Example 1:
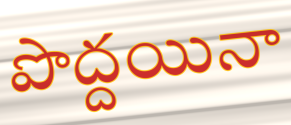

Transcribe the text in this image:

పొద్దయినా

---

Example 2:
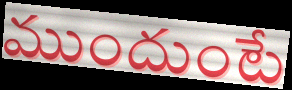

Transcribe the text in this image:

ముందుంటే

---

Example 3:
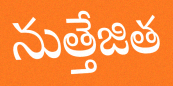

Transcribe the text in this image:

నుత్తేజిత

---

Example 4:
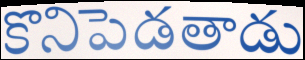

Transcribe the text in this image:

కొనిపెడతాడు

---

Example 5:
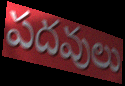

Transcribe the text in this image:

పదవులు